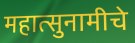
महात्सुनामीचे